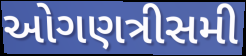
ઓગણત્રીસમી